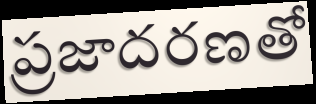
ప్రజాదరణతో